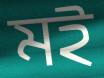
মই